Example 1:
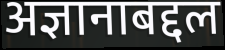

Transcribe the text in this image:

अज्ञानाबद्दल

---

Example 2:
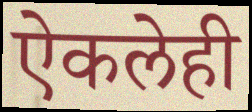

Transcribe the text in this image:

ऐकलेही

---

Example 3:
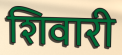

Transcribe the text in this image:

शिवारी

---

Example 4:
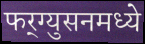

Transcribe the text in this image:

फर्ग्युसनमध्ये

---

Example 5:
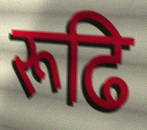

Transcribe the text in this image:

रूढि